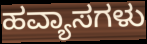
ಹವ್ಯಾಸಗಳು